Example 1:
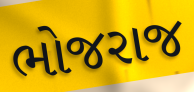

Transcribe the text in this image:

ભોજરાજ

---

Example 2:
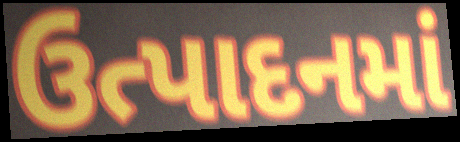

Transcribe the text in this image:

ઉત્પાદનમાં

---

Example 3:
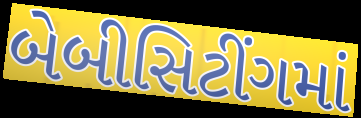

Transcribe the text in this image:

બેબીસિટીંગમાં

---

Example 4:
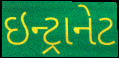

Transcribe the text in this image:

ઇન્ટ્રાનેટ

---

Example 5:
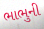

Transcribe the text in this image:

ભાભુની